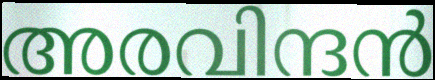
അരവിന്ദൻ